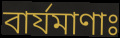
বার্যমাণাঃ